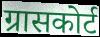
ग्रासकोर्ट